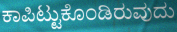
ಕಾಪಿಟ್ಟುಕೊಂಡಿರುವುದು